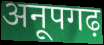
अनूपगढ़